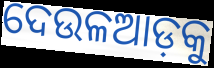
ଦେଉଳଆଡ଼କୁ